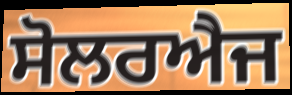
ਸੋਲਰਐਜ